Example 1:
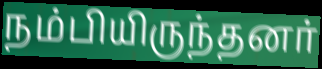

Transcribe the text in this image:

நம்பியிருந்தனர்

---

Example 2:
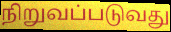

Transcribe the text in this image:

நிறுவப்படுவது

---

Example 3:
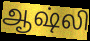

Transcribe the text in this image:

ஆஷ்லி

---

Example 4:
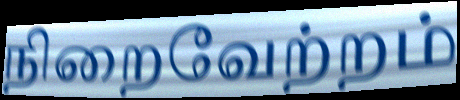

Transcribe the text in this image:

நிறைவேற்றம்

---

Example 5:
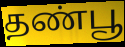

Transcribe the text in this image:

தண்பூ